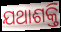
ଯଥାଶକ୍ତି